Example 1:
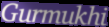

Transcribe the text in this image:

Gurmukhi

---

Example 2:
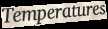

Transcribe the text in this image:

Temperatures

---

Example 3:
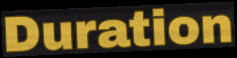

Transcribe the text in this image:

Duration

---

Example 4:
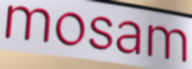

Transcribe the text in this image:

mosam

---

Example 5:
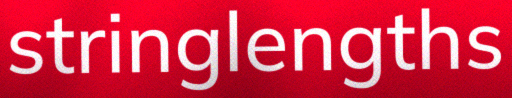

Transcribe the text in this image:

stringlengths